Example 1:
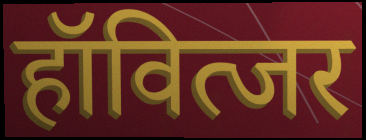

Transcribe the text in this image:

हॉवित्जर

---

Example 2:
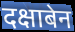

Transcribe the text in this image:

दक्षाबेन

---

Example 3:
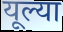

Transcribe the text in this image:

यूल्या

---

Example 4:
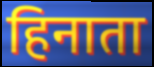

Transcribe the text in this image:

हिनाता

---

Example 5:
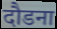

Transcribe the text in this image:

दौडना